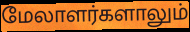
மேலாளர்களாலும்